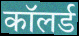
कॉलर्ड